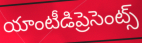
యాంటీడిప్రెసెంట్స్